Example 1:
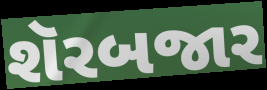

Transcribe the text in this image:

શૅરબજાર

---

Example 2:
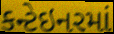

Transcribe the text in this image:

કન્ટેઇનરમાં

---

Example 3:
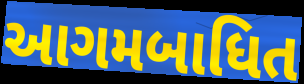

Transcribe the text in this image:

આગમબાધિત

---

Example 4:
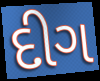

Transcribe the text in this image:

દીગ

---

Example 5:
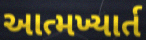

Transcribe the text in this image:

આત્મખ્યાર્ત